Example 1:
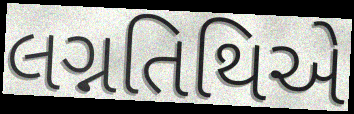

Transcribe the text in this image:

લગ્નતિથિએ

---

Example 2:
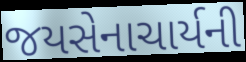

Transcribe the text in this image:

જયસેનાચાર્યની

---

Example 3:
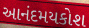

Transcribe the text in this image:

આનંદમયકોશ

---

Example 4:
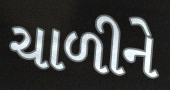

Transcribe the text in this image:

ચાળીને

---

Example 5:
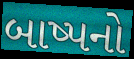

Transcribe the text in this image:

બાષ્પનો